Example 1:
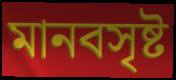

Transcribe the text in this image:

মানবসৃষ্ট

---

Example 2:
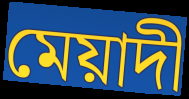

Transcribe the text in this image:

মেয়াদী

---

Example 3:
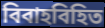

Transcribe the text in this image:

বিবাহবিহিত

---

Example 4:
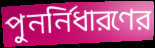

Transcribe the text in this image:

পুনর্নিধারণের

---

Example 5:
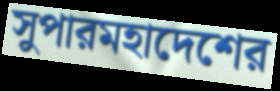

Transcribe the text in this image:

সুপারমহাদেশের